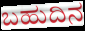
ಬಹುದಿನ